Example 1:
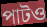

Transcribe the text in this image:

পাটও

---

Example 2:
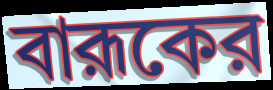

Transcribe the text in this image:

বারূকের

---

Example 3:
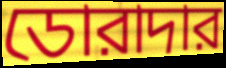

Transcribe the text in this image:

ডোরাদার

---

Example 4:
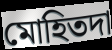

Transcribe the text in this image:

মোহিতদা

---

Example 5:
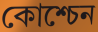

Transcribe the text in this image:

কোশ্চেন